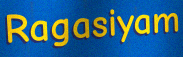
Ragasiyam